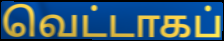
வெட்டாகப்